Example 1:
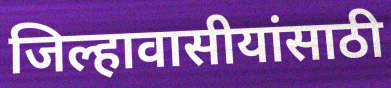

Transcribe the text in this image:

जिल्हावासीयांसाठी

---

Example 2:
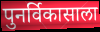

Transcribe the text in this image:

पुनर्विकासाला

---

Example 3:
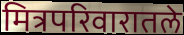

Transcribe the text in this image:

मित्रपरिवारातले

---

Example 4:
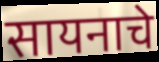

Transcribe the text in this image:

सायनाचे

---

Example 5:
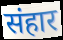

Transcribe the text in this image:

संहार